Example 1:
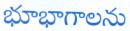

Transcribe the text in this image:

భూభాగాలను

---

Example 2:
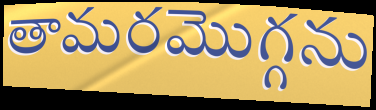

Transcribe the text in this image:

తామరమొగ్గను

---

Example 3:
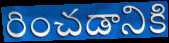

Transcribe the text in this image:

రించడానికి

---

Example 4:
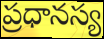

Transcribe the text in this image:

ప్రధానస్య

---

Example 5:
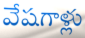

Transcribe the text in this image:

వేషగాళ్లు